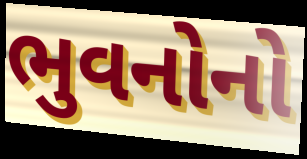
ભુવનોનો